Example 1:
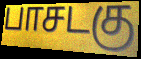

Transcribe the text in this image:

பாசடகு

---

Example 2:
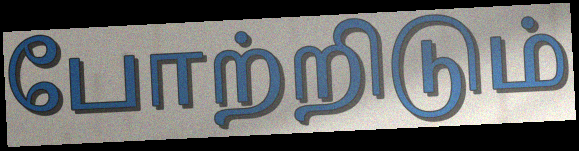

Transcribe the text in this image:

போற்றிடும்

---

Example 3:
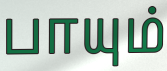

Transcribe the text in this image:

பாயும்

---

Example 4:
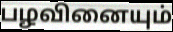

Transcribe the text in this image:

பழவினையும்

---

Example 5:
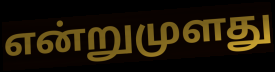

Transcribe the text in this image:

என்றுமுளது